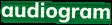
audiogram